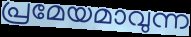
പ്രമേയമാവുന്ന